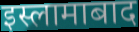
इस्लामाबाद